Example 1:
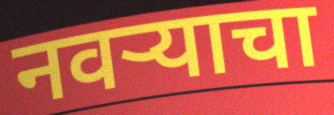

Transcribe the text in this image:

नवऱ्याचा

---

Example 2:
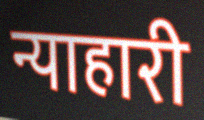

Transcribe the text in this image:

न्याहारी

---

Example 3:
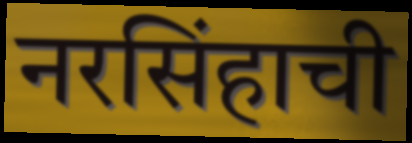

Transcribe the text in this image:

नरसिंहाची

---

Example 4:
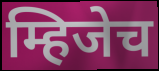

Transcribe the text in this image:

म्हिजेच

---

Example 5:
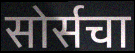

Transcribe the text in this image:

सोर्सचा